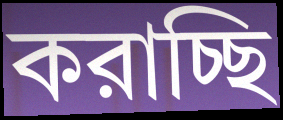
করাচ্ছি